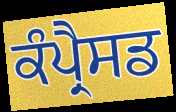
ਕੰਪ੍ਰੈਸਡ